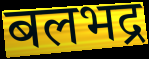
बलभद्र